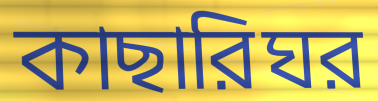
কাছারিঘর